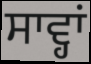
ਸਾਵ੍ਹਾਂ